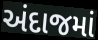
અંદાજમાં